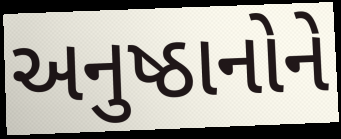
અનુષ્ઠાનોને